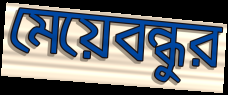
মেয়েবন্ধুর